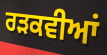
ਰੜਕਵੀਆਂ